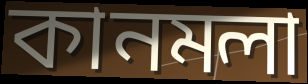
কানমলা